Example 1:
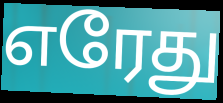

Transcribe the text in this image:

எரேது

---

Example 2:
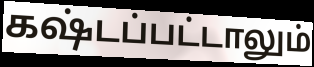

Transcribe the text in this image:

கஷ்டப்பட்டாலும்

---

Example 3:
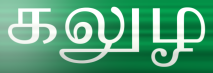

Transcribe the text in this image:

கலுழ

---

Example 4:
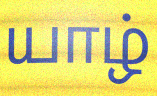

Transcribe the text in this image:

யாழ்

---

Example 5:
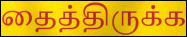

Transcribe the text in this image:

தைத்திருக்க